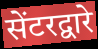
सेंटरद्वारे